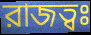
রাজত্বঃ